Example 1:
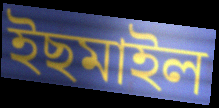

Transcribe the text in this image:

ইছমাইল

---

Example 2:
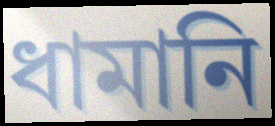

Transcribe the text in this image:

ধামানি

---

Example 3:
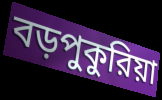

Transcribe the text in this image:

বড়পুকুরিয়া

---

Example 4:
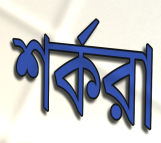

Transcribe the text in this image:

শর্করা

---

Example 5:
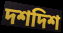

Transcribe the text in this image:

দশদিশ